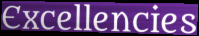
Excellencies